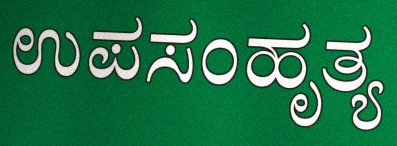
ಉಪಸಂಹೃತ್ಯ